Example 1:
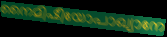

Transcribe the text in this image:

നൈമിഷീയോപാഖ്യാനേ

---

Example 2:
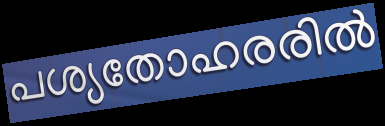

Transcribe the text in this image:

പശ്യതോഹരരിൽ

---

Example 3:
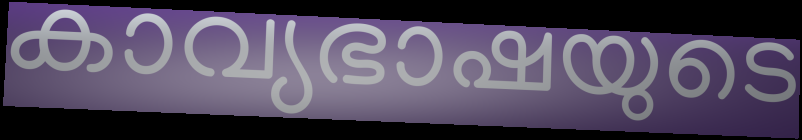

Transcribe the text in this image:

കാവ്യഭാഷയുടെ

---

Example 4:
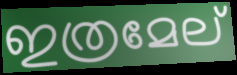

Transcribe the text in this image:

ഇത്രമേല്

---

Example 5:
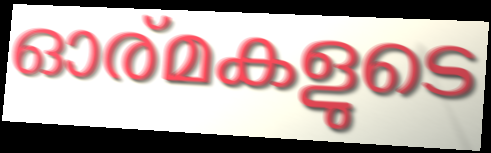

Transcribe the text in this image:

ഓര്മകളുടെ